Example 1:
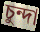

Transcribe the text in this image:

চুন্দা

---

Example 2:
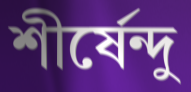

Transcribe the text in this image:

শীর্ষেন্দু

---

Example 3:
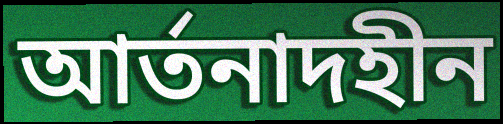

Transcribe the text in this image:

আর্তনাদহীন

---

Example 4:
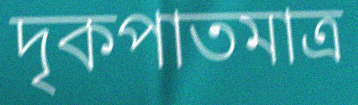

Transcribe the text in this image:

দৃকপাতমাত্র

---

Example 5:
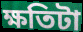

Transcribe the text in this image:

ক্ষতিটা